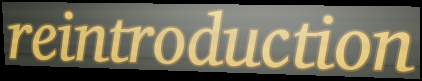
reintroduction